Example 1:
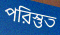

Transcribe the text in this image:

পরিস্তুত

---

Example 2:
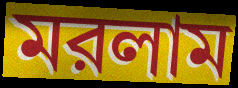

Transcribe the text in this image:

মরলাম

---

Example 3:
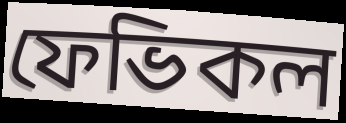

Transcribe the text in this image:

ফেভিকল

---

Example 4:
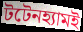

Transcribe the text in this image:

টটেনহ্যামই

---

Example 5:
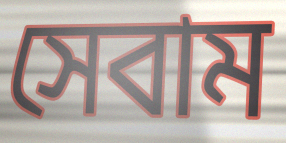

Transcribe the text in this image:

সেবাম